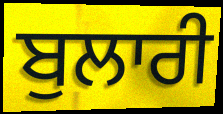
ਬੁਲਾਰੀ